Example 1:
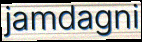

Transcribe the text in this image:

jamdagni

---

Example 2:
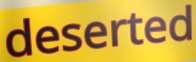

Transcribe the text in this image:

deserted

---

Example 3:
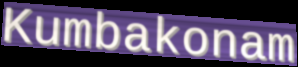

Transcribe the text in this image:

Kumbakonam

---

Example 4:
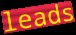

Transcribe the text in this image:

leads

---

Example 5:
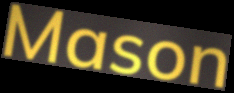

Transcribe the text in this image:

Mason